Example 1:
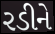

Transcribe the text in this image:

રડીને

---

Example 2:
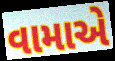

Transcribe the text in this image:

વામાએ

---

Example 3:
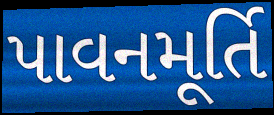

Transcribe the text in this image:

પાવનમૂર્તિ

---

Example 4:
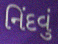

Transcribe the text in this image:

નિંદવું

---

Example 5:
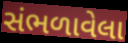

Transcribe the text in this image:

સંભળાવેલા